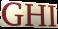
GHI